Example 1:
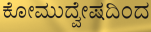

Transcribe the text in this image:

ಕೋಮುದ್ವೇಷದಿಂದ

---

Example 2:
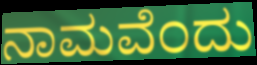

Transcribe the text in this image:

ನಾಮವೆಂದು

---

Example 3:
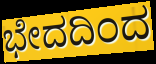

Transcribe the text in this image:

ಭೇದದಿಂದ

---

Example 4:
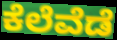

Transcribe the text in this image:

ಕೆಲೆವೆಡೆ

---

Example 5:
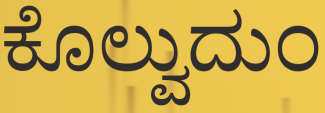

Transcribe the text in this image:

ಕೊಲ್ವುದುಂ